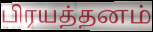
பிரயத்தனம்